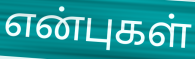
என்புகள்